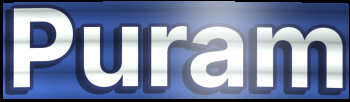
Puram